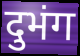
दुभंग